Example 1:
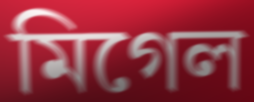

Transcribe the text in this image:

মিগেল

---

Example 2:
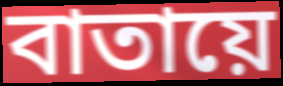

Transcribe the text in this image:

বাতায়ে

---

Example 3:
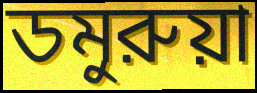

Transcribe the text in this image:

ডমুরুয়া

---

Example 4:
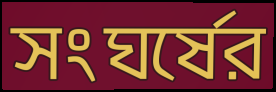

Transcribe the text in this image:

সংঘর্ষের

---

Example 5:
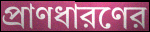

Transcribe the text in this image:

প্রাণধারণের